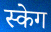
स्केग